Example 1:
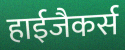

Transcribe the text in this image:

हाईजैकर्स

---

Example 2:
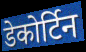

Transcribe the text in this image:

डेकोर्टिन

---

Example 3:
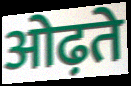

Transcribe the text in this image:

ओढ़ते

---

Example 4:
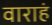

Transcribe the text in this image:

वाराहं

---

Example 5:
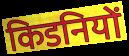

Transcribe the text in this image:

किडनियों